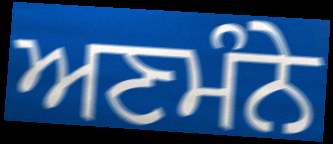
ਅਣਮੰਨੇ